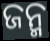
ଜନ୍ମ